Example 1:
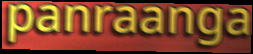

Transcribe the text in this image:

panraanga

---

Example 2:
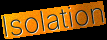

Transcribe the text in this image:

Isolation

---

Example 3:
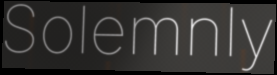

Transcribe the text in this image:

Solemnly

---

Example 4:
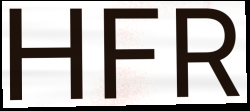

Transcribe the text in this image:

HFR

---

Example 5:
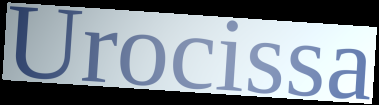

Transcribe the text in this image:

Urocissa